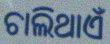
ଚାଲିଥାଏଁ